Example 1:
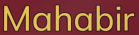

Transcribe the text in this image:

Mahabir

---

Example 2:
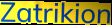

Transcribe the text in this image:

Zatrikion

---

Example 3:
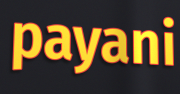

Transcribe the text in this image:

payani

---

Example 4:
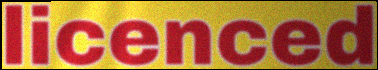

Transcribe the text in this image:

licenced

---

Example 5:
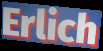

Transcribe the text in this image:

Erlich